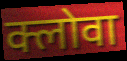
क्लोवा